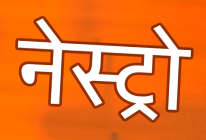
नेस्ट्रो